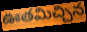
ఊతమిచ్చిన